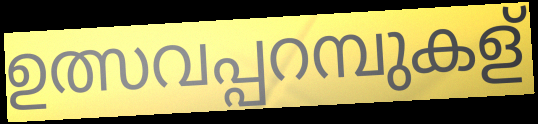
ഉത്സവപ്പറമ്പുകള്